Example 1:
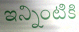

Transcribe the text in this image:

ఇన్నింటికి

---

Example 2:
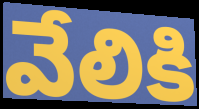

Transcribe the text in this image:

వేలికి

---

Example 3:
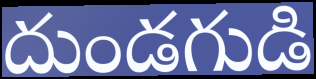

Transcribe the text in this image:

దుండగుడి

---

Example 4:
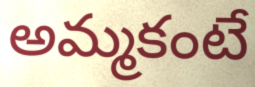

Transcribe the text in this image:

అమ్మకంటే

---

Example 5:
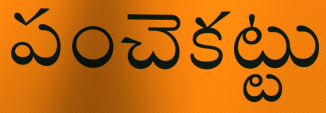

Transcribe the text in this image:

పంచెకట్టు